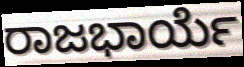
ರಾಜಭಾರ್ಯೆ